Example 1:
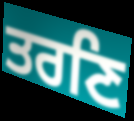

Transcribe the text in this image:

ਤਰਣਿ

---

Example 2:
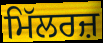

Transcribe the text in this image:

ਮਿੱਲਰਜ਼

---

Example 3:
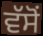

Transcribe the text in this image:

ਵੱਸੋਂ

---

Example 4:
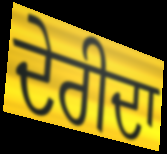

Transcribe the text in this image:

ਦੇਰੀਦਾ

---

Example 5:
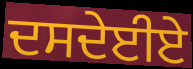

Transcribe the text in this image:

ਦਸਦੇਈਏ